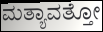
ಮತ್ಯಾವತ್ತೋ